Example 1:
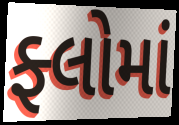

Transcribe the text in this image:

ફ્લોમાં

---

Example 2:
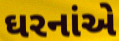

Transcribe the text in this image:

ઘરનાંએ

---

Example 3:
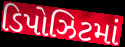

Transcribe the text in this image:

ડિપોઝિટમાં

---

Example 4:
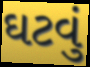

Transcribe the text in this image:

ઘટવું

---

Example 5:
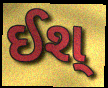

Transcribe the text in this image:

ઈશ્